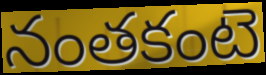
నంతకంటె